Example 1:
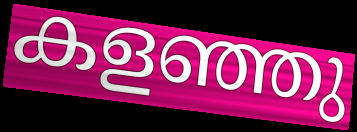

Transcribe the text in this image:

കളഞ്ഞു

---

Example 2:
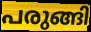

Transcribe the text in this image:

പരുങ്ങി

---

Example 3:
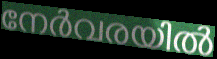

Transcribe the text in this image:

നേർവരയിൽ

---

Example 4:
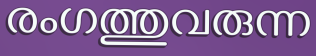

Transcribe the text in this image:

രംഗത്തുവരുന്ന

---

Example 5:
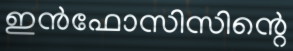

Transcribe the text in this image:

ഇൻഫോസിസിന്റെ